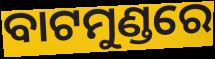
ବାଟମୁଣ୍ଡରେ